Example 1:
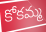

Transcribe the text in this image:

కోకమ్మ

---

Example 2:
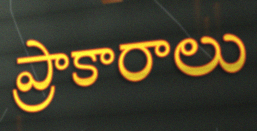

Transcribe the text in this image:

ప్రాకారాలు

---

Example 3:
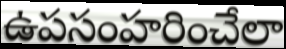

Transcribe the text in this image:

ఉపసంహరించేలా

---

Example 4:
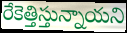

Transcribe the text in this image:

రేకెత్తిస్తున్నాయని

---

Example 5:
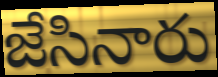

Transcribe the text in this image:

జేసినారు